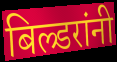
बिल्डरांनी